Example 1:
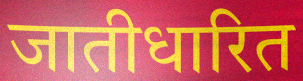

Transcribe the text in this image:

जातीधारित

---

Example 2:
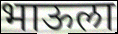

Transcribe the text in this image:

भाऊला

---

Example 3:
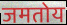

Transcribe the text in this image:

जमतोय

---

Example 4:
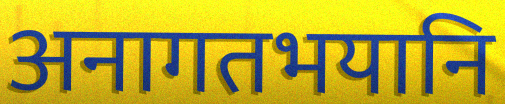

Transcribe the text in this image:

अनागतभयानि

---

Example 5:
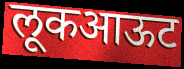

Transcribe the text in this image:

लूकआऊट